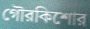
গৌরকিশোর